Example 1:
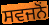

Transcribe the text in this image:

ਸਵਜਨੋਂ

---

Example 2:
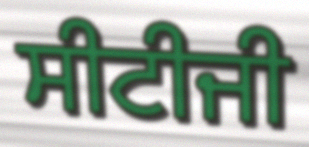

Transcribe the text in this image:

ਸੀਟੀਜੀ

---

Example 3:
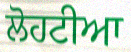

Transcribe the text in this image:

ਲੋਹਟੀਆ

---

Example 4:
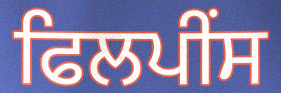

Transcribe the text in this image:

ਫਿਲਪੀਂਸ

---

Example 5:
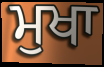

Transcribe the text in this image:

ਮੁਖਾ